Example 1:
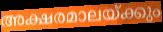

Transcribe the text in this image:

അക്ഷരമാലയ്ക്കും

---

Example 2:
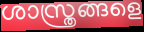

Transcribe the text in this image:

ശാസ്ത്രങ്ങളെ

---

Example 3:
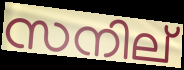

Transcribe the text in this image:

സനില്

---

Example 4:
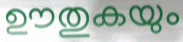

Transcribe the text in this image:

ഊതുകയും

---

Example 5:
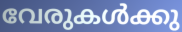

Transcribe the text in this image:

വേരുകൾക്കു